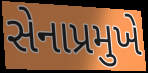
સેનાપ્રમુખે